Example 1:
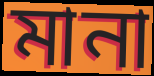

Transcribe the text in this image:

মানা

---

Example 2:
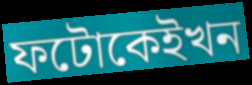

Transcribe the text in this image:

ফটোকেইখন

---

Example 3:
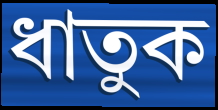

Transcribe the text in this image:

ধাতুক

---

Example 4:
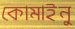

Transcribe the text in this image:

কোমাইনু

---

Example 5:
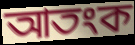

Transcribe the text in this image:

আতংক